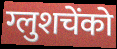
ग्लुशचेंको